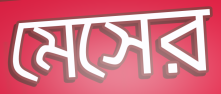
মেসের